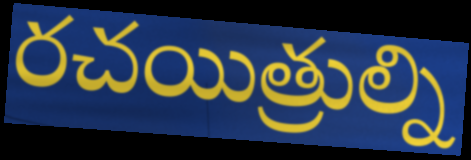
రచయిత్రుల్ని